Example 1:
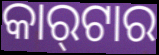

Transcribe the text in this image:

କାର୍‍ଟାର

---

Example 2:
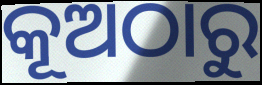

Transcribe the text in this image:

କୂଅଠାରୁ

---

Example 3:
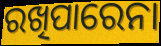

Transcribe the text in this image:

ରଖିପାରେନା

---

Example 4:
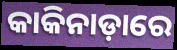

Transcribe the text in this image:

କାକିନାଡ଼ାରେ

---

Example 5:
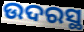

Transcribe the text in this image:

ଉଦରସ୍ଥ